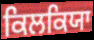
ਕਿਲਕਿਯਾ